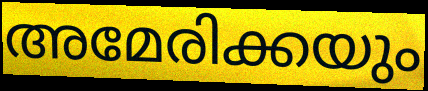
അമേരിക്കയും